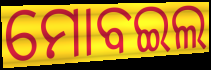
ମୋବଇଲ